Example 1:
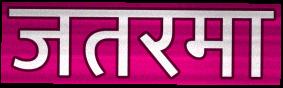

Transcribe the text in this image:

जतरमा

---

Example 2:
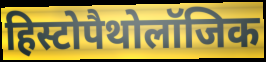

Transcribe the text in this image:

हिस्टोपैथोलॉजिक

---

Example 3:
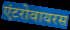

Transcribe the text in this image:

एंटरोवायरस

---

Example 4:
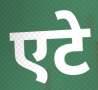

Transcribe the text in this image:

एटे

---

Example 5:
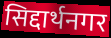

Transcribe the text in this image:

सिद्दार्थनगर